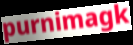
purnimagk